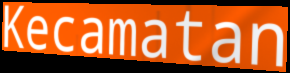
Kecamatan